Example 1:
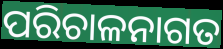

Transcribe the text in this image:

ପରିଚାଳନାଗତ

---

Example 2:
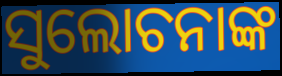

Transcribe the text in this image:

ସୁଲୋଚନାଙ୍କ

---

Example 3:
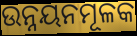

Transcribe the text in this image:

ଉନ୍ନୟନମୂଳକ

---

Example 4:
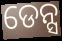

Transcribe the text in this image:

ଡେନ୍ସ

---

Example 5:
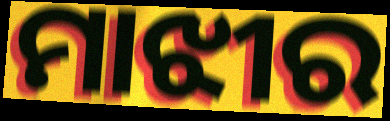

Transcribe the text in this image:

ମାଝୀର